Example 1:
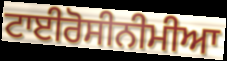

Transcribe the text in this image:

ਟਾਈਰੋਸੀਨੀਮੀਆ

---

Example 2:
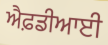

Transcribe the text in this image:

ਐਫ਼ਡੀਆਈ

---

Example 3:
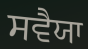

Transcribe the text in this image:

ਸਵੈਯਾ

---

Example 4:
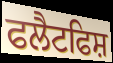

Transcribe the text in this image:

ਫਲੈਟਫਿਸ਼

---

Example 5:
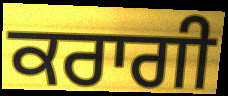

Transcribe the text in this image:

ਕਰਾਗੀ